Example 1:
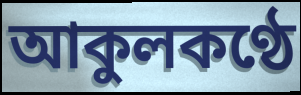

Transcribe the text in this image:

আকুলকণ্ঠে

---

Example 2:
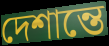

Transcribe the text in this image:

দেশান্তে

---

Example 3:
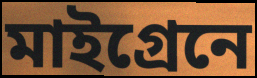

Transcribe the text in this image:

মাইগ্রেনে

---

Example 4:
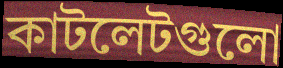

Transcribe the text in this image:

কাটলেটগুলো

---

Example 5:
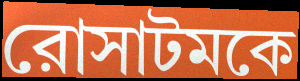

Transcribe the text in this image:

রোসাটমকে